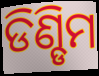
ଡିଣ୍ଡିମ